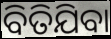
ବିତିଯିବା